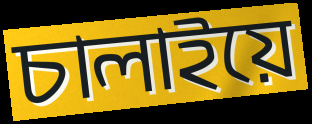
চালাইয়ে